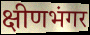
क्षीणभंगर